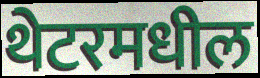
थेटरमधील